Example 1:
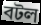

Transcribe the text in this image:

বটল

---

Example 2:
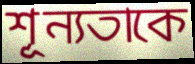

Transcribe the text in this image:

শূন্যতাকে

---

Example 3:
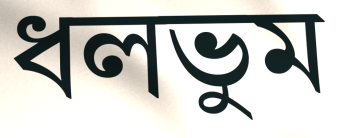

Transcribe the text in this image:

ধলভুম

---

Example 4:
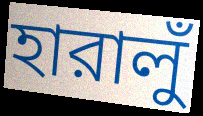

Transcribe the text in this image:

হারালুঁ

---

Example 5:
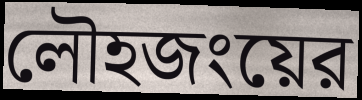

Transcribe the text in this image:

লৌহজংয়ের